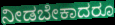
ನೀಡಬೇಕಾದರೂ